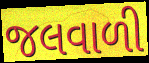
જલવાળી